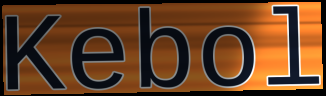
Kebol